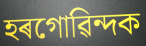
হৰগোৱিন্দক